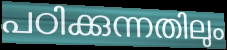
പഠിക്കുന്നതിലും